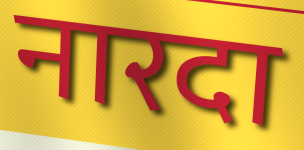
नारदा